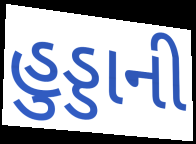
હુડ્ડાની